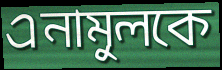
এনামুলকে